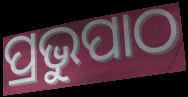
ପ୍ରଭୁପାଠ